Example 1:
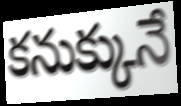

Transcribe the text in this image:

కనుక్కునే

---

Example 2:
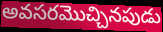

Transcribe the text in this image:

అవసరమొచ్చినపుడు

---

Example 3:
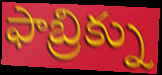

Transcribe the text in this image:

ఫాబ్రిక్ను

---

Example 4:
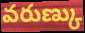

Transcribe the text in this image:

వరుణ్కు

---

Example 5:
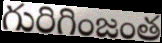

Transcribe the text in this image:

గురిగింజంత